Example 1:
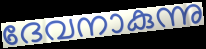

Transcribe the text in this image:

ദേവനാകുന്നു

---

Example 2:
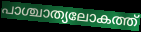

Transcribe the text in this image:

പാശ്ചാത്യലോകത്ത്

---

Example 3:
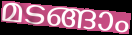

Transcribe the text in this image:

മടങ്ങാം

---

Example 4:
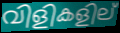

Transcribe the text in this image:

വിളികളില്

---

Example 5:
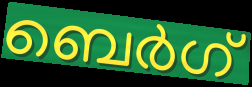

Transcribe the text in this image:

ബെർഗ്